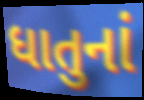
ધાતુનાં